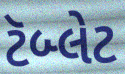
ટૅબ્લેટ